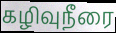
கழிவுநீரை